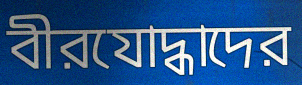
বীরযোদ্ধাদের